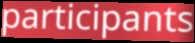
participants